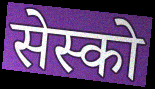
सेस्को